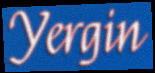
Yergin